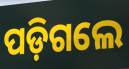
ପଡ଼ିଗଲେ